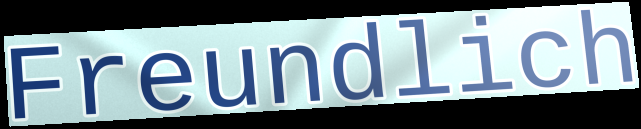
Freundlich